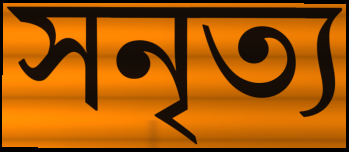
সনৃত্য